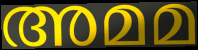
അമമ